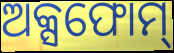
ଅକ୍ସଫୋମ୍